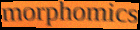
morphomics